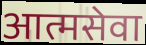
आत्मसेवा